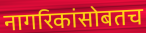
नागरिकांसोबतच